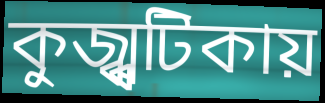
কুজ্ঝ্বটিকায়